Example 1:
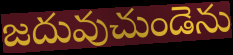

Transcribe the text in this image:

జదువుచుండెను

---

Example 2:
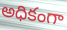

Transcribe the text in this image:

అధికంగా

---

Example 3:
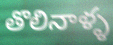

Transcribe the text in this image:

తొలినాళ్ళ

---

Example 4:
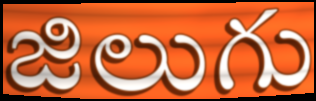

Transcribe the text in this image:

జిలుగు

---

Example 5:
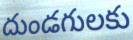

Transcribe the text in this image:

దుండగులకు